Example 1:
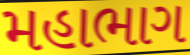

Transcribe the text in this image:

મહાભાગ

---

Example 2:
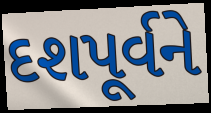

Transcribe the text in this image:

દશપૂર્વને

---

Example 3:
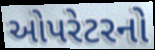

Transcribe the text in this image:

ઓપરેટરનો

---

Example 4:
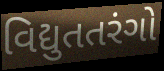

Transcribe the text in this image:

વિદ્યુતતરંગો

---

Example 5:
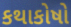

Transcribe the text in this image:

કથાકોષો